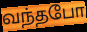
வந்தபோ